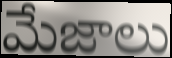
మేజాలు